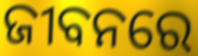
ଜୀବନରେ